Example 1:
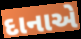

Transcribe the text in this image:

દાનાએ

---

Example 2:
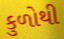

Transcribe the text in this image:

કુળોથી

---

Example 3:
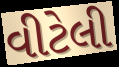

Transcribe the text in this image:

વીટેલી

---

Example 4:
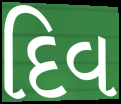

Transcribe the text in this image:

દિવ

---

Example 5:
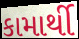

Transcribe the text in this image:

કામાર્થી